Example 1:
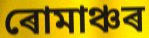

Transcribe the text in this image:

ৰোমাঞ্চৰ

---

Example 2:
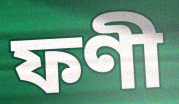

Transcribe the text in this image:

ফণী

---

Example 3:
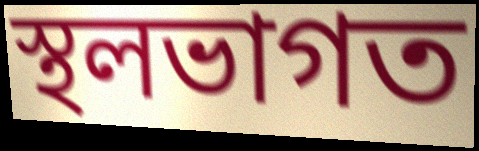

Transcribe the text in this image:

স্থলভাগত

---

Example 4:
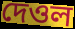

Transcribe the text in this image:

দেওল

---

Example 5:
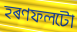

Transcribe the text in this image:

হৰণফলটো